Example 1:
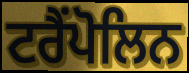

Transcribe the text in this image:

ਟਰੈਂਪੋਲਿਨ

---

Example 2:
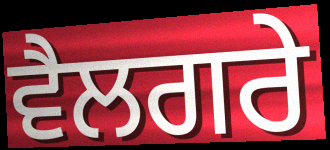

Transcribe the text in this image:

ਵੈਲਗਰੇ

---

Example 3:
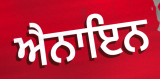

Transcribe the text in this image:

ਐਨਾਇਨ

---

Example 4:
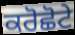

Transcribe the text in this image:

ਕਰੋਛੋਟੇ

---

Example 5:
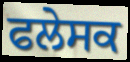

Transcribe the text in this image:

ਫਲੇਸਕ